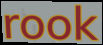
rook